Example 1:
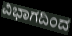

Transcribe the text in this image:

ವಿಭಾಗದಿಂದ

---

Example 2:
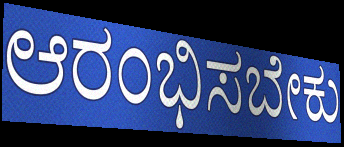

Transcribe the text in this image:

ಆರಂಭಿಸಬೇಕು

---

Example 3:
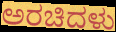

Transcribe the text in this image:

ಅರಚಿದಳು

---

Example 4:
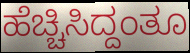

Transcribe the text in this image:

ಹೆಚ್ಚಿಸಿದ್ದಂತೂ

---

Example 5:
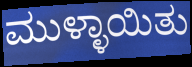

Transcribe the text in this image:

ಮುಳ್ಳಾಯಿತು